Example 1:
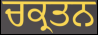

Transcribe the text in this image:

ਚਕ੍ਰਤਨ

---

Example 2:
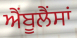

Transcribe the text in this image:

ਐੰਬੂਲੈਂਸਾਂ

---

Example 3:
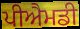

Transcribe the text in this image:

ਪੀਐਮਡੀ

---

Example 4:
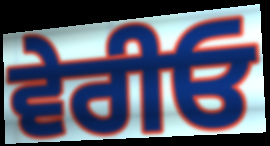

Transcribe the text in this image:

ਵੇਰੀਓ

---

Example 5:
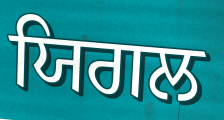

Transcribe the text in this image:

ਯਿਗਲ